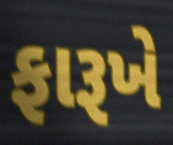
ફારૂખે